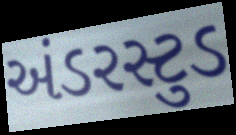
અંડરસ્ટુડ